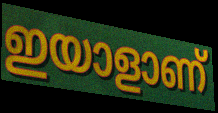
ഇയാളാണ്